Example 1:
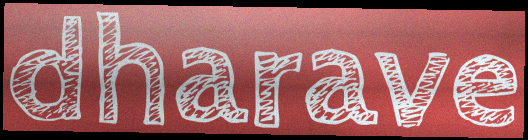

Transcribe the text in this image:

dharave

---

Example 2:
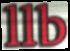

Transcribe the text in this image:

llb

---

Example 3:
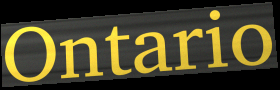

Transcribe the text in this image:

Ontario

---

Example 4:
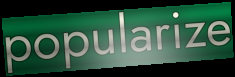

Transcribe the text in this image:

popularize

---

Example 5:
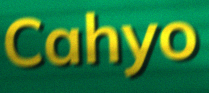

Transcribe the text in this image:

Cahyo